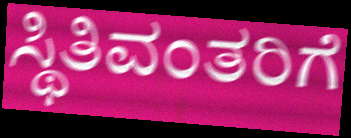
ಸ್ಥಿತಿವಂತರಿಗೆ